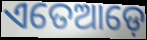
ଏତେଆଡ଼େ